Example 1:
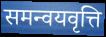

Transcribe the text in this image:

समन्वयवृत्ति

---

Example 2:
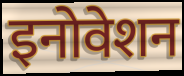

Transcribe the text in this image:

इनोवेशन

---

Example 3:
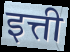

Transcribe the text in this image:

इत्ती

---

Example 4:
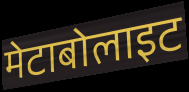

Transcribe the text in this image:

मेटाबोलाइट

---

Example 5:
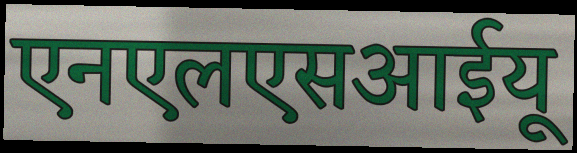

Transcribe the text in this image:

एनएलएसआईयू